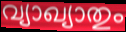
വ്യാഖ്യാതും